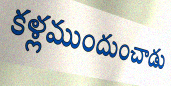
కళ్లముందుంచాడు